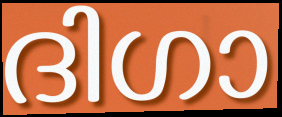
ദിഗാ